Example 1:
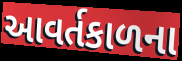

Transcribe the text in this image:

આવર્તકાળના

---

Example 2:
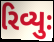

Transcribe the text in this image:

રિવ્યુઃ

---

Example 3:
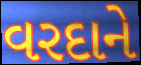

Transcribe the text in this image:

વરદાને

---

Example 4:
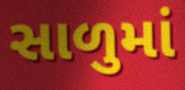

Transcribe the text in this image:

સાળુમાં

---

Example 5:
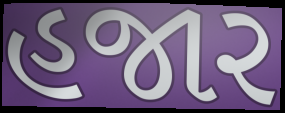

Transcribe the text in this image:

હજાર